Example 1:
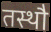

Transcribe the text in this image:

तस्थौ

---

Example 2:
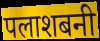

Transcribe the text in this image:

पलाशबनी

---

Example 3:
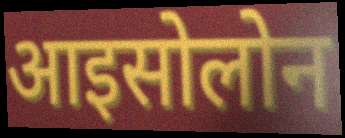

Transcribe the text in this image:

आइसोलोन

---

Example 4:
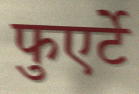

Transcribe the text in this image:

फुएर्टे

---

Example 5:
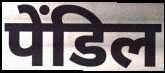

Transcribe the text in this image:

पेंडिल